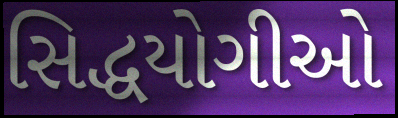
સિદ્ધયોગીઓ